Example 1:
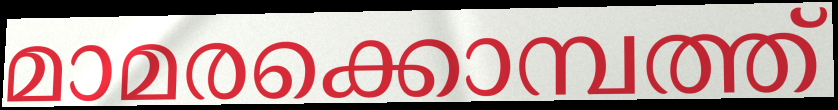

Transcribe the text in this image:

മാമരക്കൊമ്പത്ത്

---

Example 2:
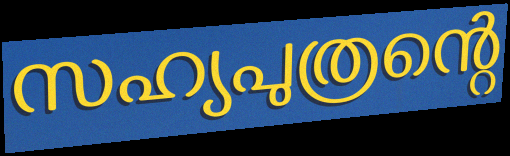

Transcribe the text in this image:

സഹ്യപുത്രന്റെ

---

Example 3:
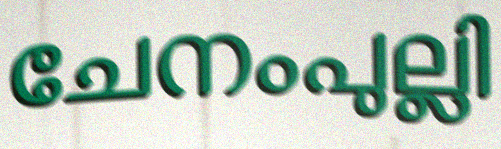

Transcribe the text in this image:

ചേനംപുല്ലി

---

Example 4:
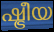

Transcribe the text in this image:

ഷ്ട്രീയ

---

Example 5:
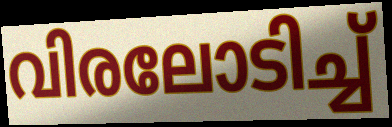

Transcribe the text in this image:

വിരലോടിച്ച്